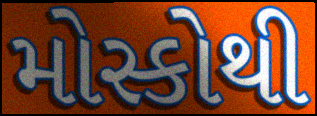
મોસ્કોથી